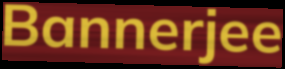
Bannerjee